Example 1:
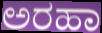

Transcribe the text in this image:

ಅರಹಾ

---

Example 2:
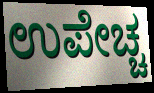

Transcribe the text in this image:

ಉಪೇಚ್ಚ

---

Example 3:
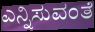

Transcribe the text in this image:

ಎನ್ನಿಸುವಂತೆ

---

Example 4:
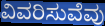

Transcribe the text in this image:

ವಿವರಿಸುವೆವು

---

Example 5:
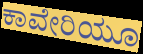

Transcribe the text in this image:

ಕಾವೇರಿಯೂ